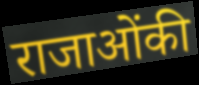
राजाओंकी